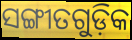
ସଙ୍ଗୀତଗୁଡ଼ିକ